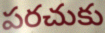
పరచుకు